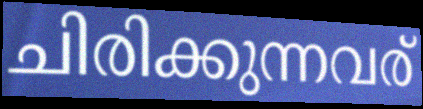
ചിരിക്കുന്നവര്